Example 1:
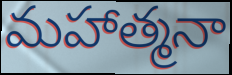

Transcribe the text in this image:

మహాత్మనా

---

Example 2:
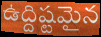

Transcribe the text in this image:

ఉద్దిష్టమైన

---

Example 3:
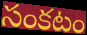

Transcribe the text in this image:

సంకటం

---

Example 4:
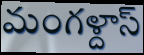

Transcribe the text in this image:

మంగళ్దాస్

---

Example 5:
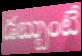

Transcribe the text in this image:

డబ్బుంటే